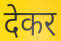
देकर